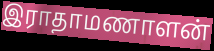
இராதாமணாளன்